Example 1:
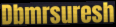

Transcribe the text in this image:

Dbmrsuresh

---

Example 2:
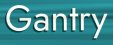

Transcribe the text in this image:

Gantry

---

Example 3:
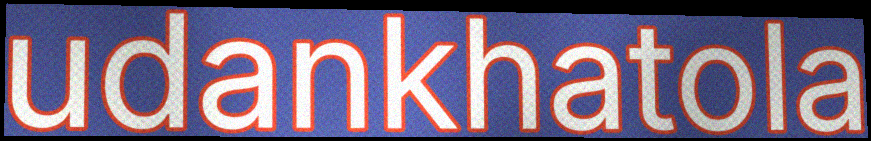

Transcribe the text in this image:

udankhatola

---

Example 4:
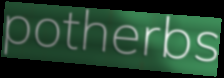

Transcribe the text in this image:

potherbs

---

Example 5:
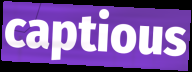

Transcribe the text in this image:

captious